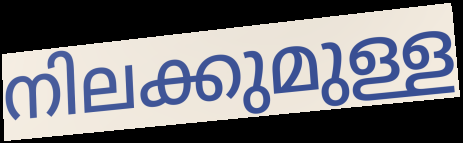
നിലക്കുമുള്ള